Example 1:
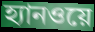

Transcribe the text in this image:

হ্যানওয়ে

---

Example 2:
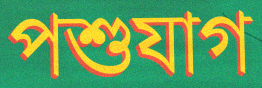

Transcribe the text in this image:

পশুযাগ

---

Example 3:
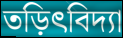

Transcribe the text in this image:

তড়িৎবিদ্যা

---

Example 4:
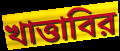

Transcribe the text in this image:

খাত্তাবির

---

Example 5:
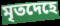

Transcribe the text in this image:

মৃতদেহে